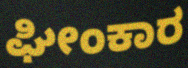
ಘೀಂಕಾರ